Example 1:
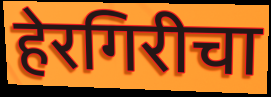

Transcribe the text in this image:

हेरगिरीचा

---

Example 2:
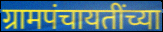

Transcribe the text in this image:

ग्रामपंचायतींच्या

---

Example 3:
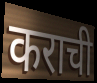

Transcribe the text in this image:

कराची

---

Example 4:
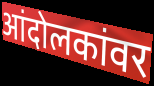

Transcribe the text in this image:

आंदोलकांवर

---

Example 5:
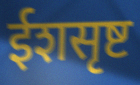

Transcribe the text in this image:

ईशसृष्ट